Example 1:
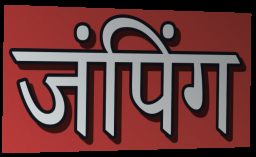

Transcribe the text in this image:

जंपिंग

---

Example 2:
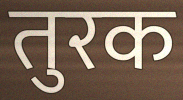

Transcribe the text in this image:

तुरक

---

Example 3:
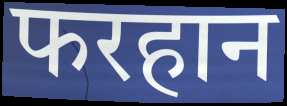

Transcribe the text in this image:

फरहान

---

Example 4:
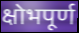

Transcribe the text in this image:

क्षोभपूर्ण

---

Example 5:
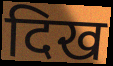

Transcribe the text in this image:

दिख